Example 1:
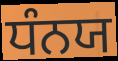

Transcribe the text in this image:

ਧੰਨਯ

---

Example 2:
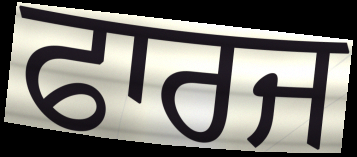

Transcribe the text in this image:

ਫਾਰਜ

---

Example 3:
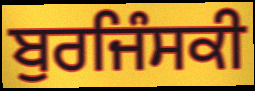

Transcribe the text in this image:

ਬੁਰਜਿੰਸਕੀ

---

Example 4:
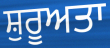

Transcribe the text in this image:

ਸ਼ੁਰੂਅਤਾ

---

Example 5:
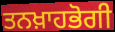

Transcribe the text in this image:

ਤਨਖ਼ਾਹਭੋਗੀ